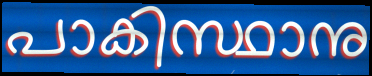
പാകിസ്ഥാനു